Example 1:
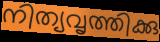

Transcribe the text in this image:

നിത്യവൃത്തിക്കു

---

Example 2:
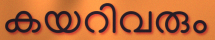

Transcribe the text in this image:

കയറിവരും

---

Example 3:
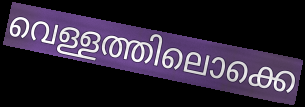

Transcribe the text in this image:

വെള്ളത്തിലൊക്കെ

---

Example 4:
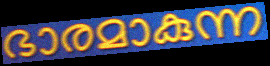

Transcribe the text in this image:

ഭാരമാകുന്ന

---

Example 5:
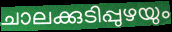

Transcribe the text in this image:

ചാലക്കുടിപ്പുഴയും